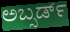
ಅಬ್ಸರ್ಡ್